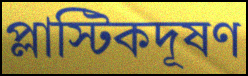
প্লাস্টিকদূষণ